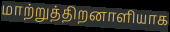
மாற்றுத்திறனாளியாக